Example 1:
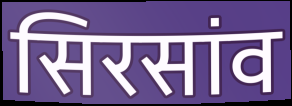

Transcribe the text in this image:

सिरसांव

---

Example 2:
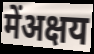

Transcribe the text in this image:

मेंअक्षय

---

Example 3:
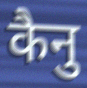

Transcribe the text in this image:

कैनु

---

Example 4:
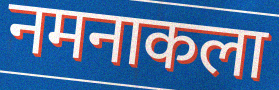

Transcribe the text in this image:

नमनाकला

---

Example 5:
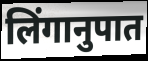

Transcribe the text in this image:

लिंगानुपात